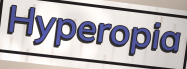
Hyperopia